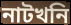
নাটখনি